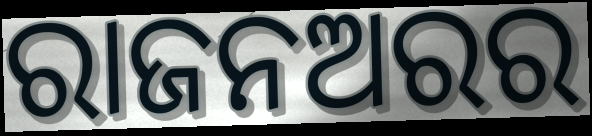
ରାଜନଅରର